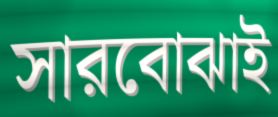
সারবোঝাই